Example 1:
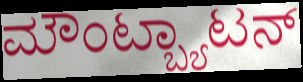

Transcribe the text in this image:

ಮೌಂಟ್ಬ್ಯಾಟನ್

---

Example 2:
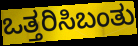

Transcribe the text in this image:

ಒತ್ತರಿಸಿಬಂತು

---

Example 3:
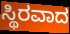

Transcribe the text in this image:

ಸ್ಥಿರವಾದ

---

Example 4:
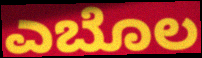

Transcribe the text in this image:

ಎಬೊಲ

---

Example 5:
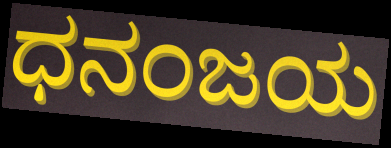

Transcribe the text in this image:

ಧನಂಜಯ